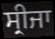
ਸ੍ਰੀਜਾ